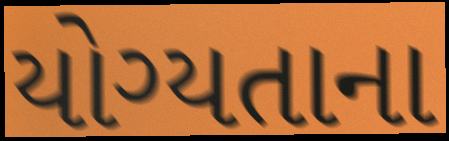
યોગ્યતાના